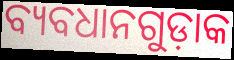
ବ୍ୟବଧାନଗୁଡ଼ାକ